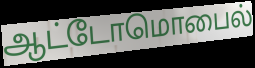
ஆட்டோமொபைல்